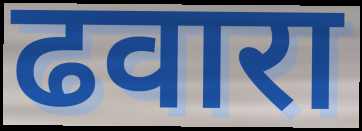
ढवारा